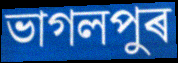
ভাগলপুৰ